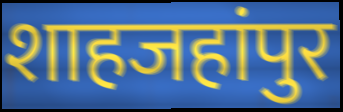
शाहजहांपुर